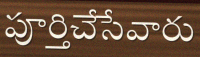
పూర్తిచేసేవారు